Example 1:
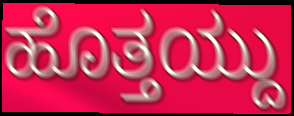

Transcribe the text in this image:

ಹೊತ್ತಯ್ದು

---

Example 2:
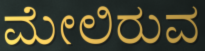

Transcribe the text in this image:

ಮೇಲಿರುವ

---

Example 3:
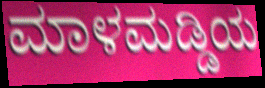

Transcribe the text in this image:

ಮಾಳಮಡ್ಡಿಯ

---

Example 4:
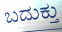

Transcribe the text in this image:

ಬದುಕ್ತು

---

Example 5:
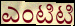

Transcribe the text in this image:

ಎಂಟಿಟಿ